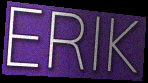
ERIK